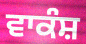
ਵਾਕੰਸ਼